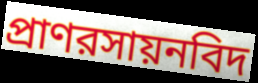
প্রাণরসায়নবিদ